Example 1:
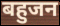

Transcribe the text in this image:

बहुजन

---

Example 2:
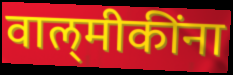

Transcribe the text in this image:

वाल्मीकींना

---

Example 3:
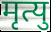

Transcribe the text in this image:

मृत्यु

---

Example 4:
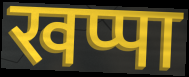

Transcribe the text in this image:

खप्पा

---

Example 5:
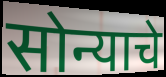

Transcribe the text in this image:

सोन्याचे